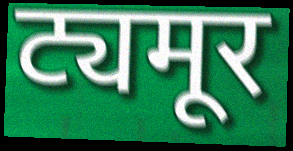
ट्यमूर